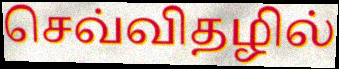
செவ்விதழில்